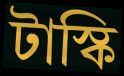
টাস্কি